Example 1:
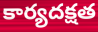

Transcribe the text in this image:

కార్యదక్షత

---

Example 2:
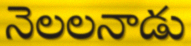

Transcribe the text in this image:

నెలలనాడు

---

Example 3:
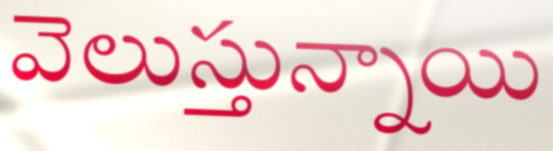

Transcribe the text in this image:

వెలుస్తున్నాయి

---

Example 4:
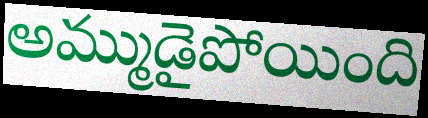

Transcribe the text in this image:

అమ్ముడైపోయింది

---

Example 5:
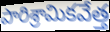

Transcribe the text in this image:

పారిశ్రామికవేత్త